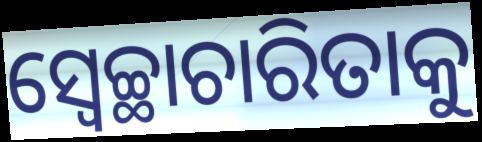
ସ୍ଵେଚ୍ଛାଚାରିତାକୁ